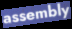
assembly